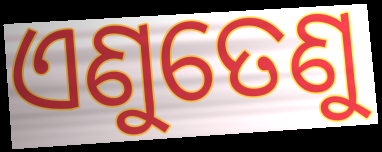
ଏଣୁତେଣୁ